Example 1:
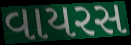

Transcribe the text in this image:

વાયરસ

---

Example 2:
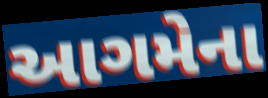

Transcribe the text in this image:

આગમેના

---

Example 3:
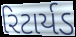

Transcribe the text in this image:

રિટાર્યડ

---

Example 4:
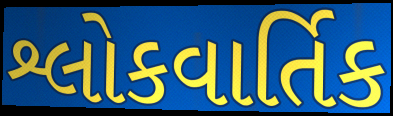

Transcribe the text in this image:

શ્લોકવાર્તિક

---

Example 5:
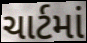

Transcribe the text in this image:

ચાર્ટમાં